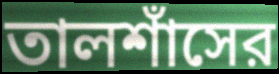
তালশাঁসের